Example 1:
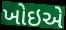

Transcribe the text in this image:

ખોઇએ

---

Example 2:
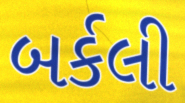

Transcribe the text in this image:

બર્કલી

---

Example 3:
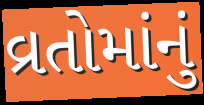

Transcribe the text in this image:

વ્રતોમાંનું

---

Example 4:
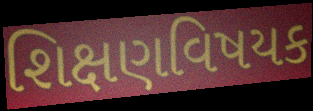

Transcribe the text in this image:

શિક્ષણવિષયક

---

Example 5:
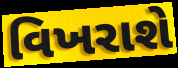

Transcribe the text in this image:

વિખરાશે